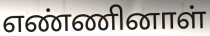
எண்ணினாள்